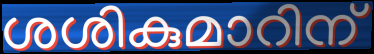
ശശികുമാറിന്